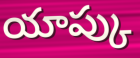
యాప్కు